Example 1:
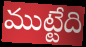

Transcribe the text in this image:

ముట్టేది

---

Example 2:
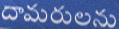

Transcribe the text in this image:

దామరులను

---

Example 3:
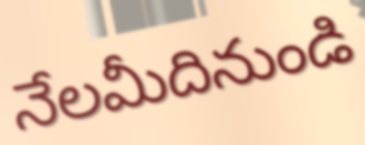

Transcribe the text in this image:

నేలమీదినుండి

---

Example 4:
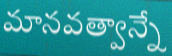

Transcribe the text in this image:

మానవత్వాన్నే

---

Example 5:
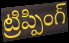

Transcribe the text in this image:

ట్రిప్పింగ్